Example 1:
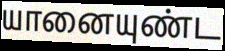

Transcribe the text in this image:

யானையுண்ட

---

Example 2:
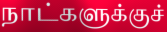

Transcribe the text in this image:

நாட்களுக்குச்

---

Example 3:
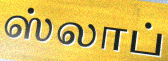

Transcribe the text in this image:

ஸ்லாப்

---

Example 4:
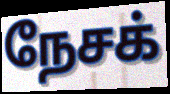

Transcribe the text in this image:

நேசக்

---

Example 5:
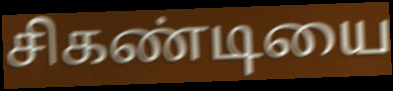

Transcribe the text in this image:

சிகண்டியை